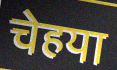
चेहया